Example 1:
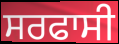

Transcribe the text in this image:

ਸਰਫਾਸੀ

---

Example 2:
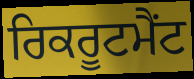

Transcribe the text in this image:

ਰਿਕਰੂਟਮੈਂਟ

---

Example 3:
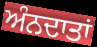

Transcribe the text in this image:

ਅੰਨਦਾਤਾਂ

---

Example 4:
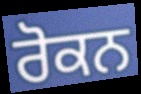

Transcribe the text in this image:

ਰੋਕਨ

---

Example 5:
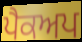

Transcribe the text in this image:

ਪੈਕਅਪ